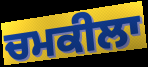
ਚਮਕੀਲਾ